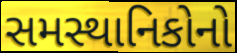
સમસ્થાનિકોનો